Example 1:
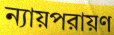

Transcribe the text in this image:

ন্যায়পরায়ণ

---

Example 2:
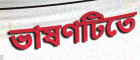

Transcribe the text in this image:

ভাষণটিতে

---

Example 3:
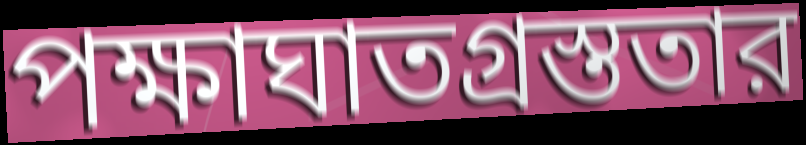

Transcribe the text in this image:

পক্ষাঘাতগ্রস্ততার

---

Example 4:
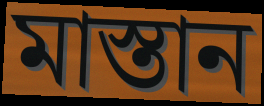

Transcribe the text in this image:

মাস্তান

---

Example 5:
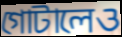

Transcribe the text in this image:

গোটালেও